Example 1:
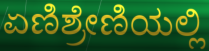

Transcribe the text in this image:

ಏಣಿಶ್ರೇಣಿಯಲ್ಲಿ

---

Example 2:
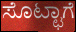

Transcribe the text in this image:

ಸೊಟ್ಟಾಗೆ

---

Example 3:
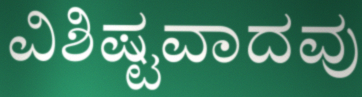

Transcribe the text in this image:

ವಿಶಿಷ್ಟವಾದವು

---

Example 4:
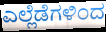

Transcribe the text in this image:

ಎಲ್ಲೆಡೆಗಳಿಂದ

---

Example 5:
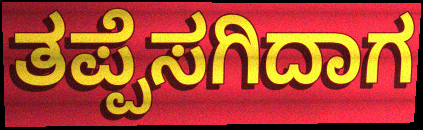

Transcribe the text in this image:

ತಪ್ಪೆಸಗಿದಾಗ